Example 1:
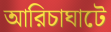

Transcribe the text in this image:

আরিচাঘাটে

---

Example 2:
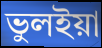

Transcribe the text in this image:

ভুলইয়া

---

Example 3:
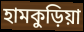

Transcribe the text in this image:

হামকুড়িয়া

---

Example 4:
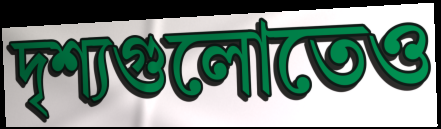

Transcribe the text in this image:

দৃশ্যগুলোতেও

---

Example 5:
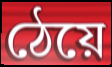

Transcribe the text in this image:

ঠেয়ে